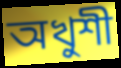
অখুশী